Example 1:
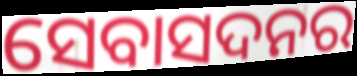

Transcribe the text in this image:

ସେବାସଦନର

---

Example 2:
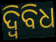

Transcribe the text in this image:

ଦ୍ଵିବିଧ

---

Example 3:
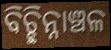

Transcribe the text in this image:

ବିଚ୍ଛିନ୍ନାଞ୍ଚଳ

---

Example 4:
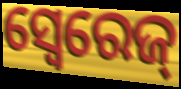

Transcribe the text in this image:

ସ୍ୱେରେଜ୍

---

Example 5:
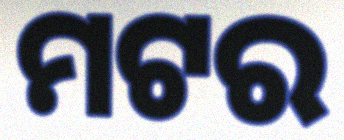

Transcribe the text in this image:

ମଟର